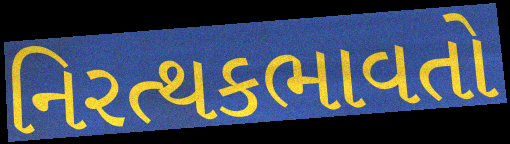
નિરત્થકભાવતો